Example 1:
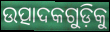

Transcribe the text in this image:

ଉତ୍ପାଦକଗୁଡ଼ିକୁ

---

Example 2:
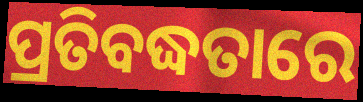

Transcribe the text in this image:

ପ୍ରତିବଦ୍ଧତାରେ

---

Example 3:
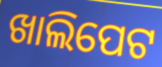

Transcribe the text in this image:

ଖାଲିପେଟ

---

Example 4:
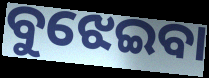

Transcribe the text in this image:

ବୁଝେଇବା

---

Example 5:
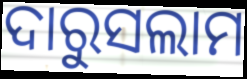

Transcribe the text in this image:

ଦାରୁସଲାମ